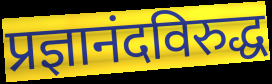
प्रज्ञानंदविरुद्ध